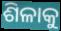
ଶିଳାକୁ